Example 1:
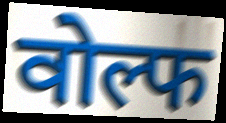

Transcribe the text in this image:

वोल्फ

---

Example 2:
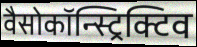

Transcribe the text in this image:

वैसोकॉन्स्ट्रिक्टिव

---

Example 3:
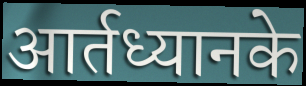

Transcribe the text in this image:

आर्तध्यानके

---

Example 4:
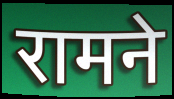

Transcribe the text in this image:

रामने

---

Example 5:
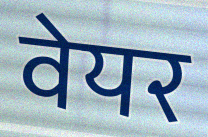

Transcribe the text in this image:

वेयर